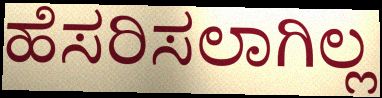
ಹೆಸರಿಸಲಾಗಿಲ್ಲ